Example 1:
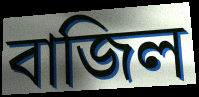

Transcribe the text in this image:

বাজিল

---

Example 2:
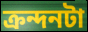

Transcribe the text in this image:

ক্রন্দনটা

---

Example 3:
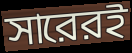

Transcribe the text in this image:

সারেরই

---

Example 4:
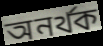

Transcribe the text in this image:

অনর্থক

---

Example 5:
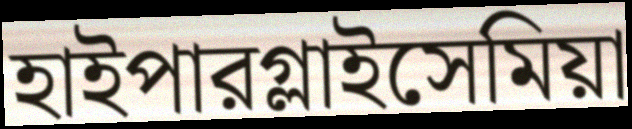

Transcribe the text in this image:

হাইপারগ্লাইসেমিয়া